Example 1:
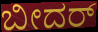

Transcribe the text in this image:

ಬೀದರ್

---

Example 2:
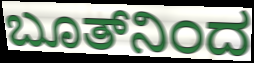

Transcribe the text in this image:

ಬೂತ್‌ನಿಂದ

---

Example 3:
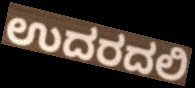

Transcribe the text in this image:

ಉದರದಲಿ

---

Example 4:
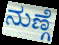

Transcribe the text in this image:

ನುಣ್ಗೆ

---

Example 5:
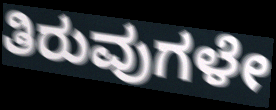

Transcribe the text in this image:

ತಿರುವುಗಳೇ